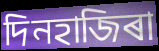
দিনহাজিৰা